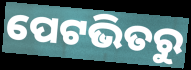
ପେଟଭିତରୁ